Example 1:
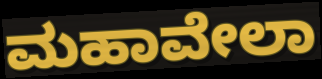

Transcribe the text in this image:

ಮಹಾವೇಲಾ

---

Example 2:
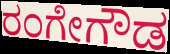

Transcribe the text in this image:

ರಂಗೇಗೌಡ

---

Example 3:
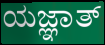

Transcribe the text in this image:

ಯಜ್ಞಾತ್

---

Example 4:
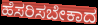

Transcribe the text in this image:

ಹೆಸರಿಸಬೇಕಾದ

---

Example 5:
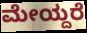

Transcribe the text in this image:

ಮೇಯ್ದರೆ